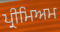
ਪ੍ਰੀਮਿਅਮ